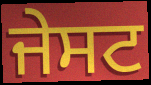
ਜੇਸਟ